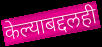
केल्याबद्दलही